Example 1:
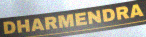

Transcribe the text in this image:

DHARMENDRA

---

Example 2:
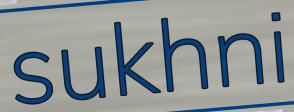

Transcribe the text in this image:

sukhni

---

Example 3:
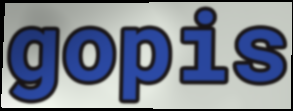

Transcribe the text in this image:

gopis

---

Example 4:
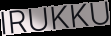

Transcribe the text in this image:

IRUKKU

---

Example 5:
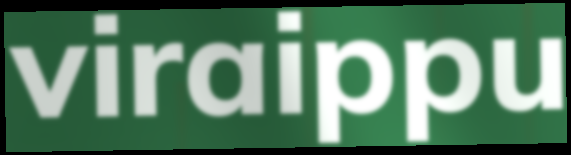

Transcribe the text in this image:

viraippu